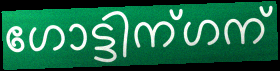
ഗോട്ടിന്ഗന്